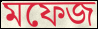
মফেজ